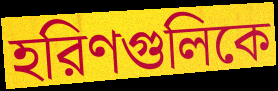
হরিণগুলিকে